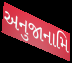
અનુજાનામિ